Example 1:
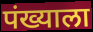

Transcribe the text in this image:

पंख्याला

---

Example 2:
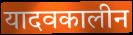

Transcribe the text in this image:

यादवकालीन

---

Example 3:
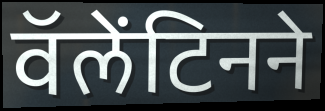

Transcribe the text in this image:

वॅलेंटिनने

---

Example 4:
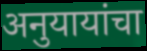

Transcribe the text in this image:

अनुयायांचा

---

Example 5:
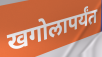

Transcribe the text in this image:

खगोलापर्यंत